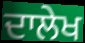
ਦਾਲੇਖ